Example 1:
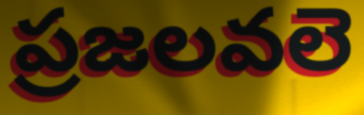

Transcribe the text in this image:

ప్రజలవలె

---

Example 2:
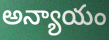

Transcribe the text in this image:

అన్యాయం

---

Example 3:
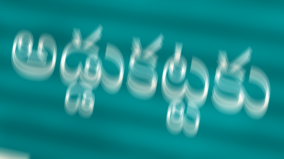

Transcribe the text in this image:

అడ్డుకట్టకు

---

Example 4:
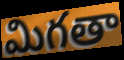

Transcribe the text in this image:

మిగతా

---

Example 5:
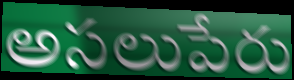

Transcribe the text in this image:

అసలుపేరు